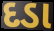
દડા